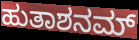
ಹುತಾಶನಮ್